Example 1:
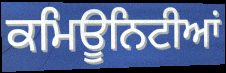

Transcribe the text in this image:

ਕਮਿਊਨਿਟੀਆਂ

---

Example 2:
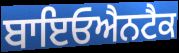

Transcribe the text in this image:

ਬਾਇਓਐਨਟੈਕ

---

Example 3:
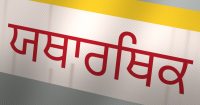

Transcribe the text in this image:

ਯਥਾਰਥਿਕ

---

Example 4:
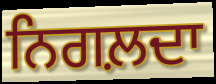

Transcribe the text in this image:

ਨਿਗਲ਼ਦਾ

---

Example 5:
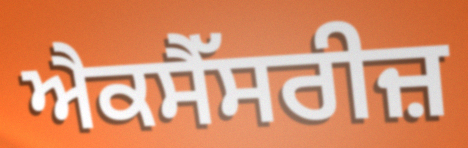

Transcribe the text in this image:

ਐਕਸੈੱਸਰੀਜ਼